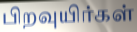
பிறவுயிர்கள்